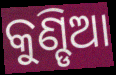
କୁଣ୍ଡିଆ